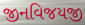
જીનવિજયજી